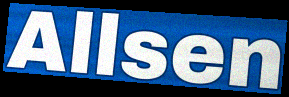
Allsen